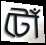
টোঁ